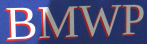
BMWP